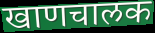
खाणचालक